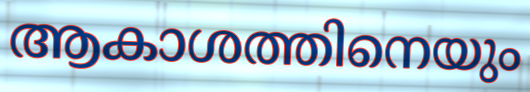
ആകാശത്തിനെയും